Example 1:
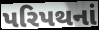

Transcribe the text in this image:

પરિપથનાં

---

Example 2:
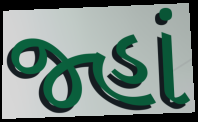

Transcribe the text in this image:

જ્હાં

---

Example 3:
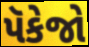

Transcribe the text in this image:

પૅકેજો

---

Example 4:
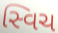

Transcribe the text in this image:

સ્વિચ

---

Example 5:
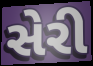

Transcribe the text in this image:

સેરી